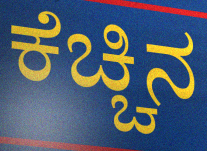
ಕೆಚ್ಚಿನ